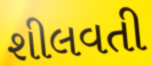
શીલવતી